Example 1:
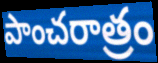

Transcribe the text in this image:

పాంచరాత్రం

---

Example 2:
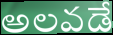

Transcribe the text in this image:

అలవడే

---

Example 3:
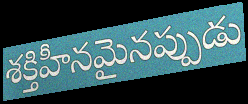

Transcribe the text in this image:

శక్తిహీనమైనప్పుడు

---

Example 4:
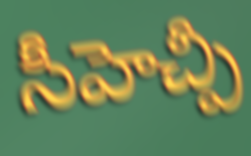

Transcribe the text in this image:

సీహెచ్పీ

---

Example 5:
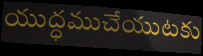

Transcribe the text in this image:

యుద్ధముచేయుటకు